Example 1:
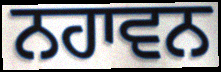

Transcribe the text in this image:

ਨਹਾਵਨ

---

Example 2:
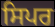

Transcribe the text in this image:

ਸਿਪਰ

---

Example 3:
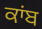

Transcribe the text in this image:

ਕਾਂਬ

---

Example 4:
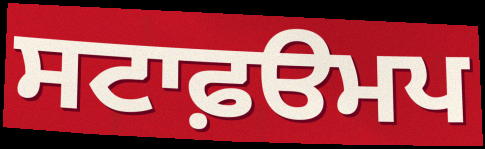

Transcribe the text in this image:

ਸਟਾਫ਼ੳਮਪ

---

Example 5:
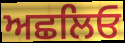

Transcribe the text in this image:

ਅਛਲਿਓ